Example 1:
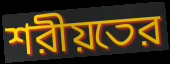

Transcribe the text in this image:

শরীয়তের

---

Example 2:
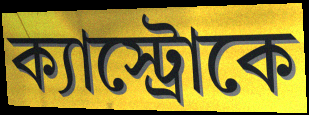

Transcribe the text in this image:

ক্যাস্ট্রোকে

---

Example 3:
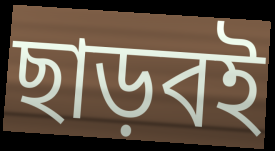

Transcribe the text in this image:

ছাড়বই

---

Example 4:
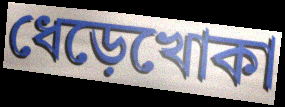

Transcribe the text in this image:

ধেড়েখোকা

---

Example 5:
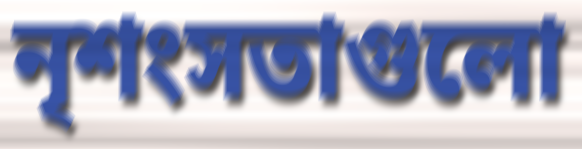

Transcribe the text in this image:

নৃশংসতাগুলো